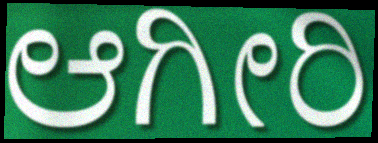
ಆಗೀರಿ